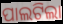
ପାଲଟିଲା